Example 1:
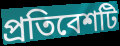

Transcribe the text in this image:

প্রতিবেশটি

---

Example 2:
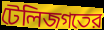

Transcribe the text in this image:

টেলিজগতের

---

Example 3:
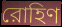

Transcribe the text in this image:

রোহিণ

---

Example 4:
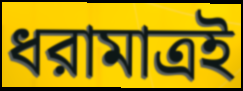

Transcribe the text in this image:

ধরামাত্রই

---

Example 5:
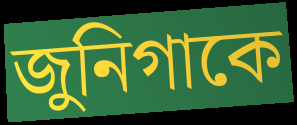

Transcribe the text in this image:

জুনিগাকে